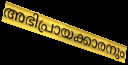
അഭിപ്രായക്കാരനും